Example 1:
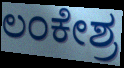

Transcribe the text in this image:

ಲಂಕೇಶ್ರ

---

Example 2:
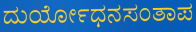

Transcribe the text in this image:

ದುರ್ಯೋಧನಸಂತಾಪ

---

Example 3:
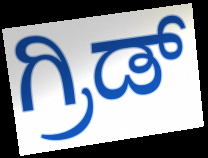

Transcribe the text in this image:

ಗ್ರಿಡ್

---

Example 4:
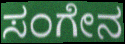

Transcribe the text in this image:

ಸಂಗೇನ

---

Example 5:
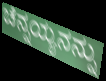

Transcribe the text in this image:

ಚೆನ್ನಯ್ಯನನ್ನು